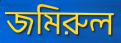
জমিরুল